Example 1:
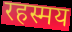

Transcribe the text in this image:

रहस्मय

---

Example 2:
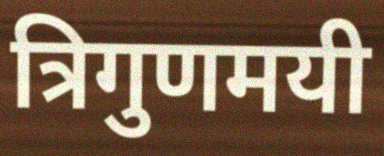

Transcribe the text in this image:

त्रिगुणमयी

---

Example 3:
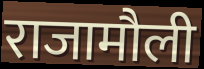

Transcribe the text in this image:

राजामौली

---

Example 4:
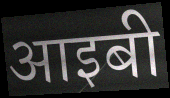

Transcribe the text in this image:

आइबी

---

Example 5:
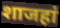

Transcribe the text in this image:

शाजहां